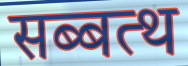
सब्बत्थ